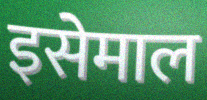
इसेमाल